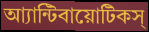
আ্যান্টিবায়োটিকস্